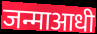
जन्माआधी